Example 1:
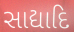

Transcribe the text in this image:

સાદ્યાદિ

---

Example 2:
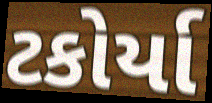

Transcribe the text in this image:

ટકોર્યા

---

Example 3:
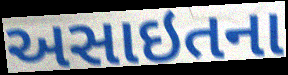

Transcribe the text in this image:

અસાઇતના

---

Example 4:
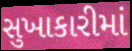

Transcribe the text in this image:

સુખાકારીમાં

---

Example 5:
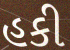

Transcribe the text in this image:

હકી